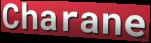
Charane